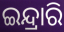
ଇନ୍ଦ୍ରାରି